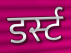
डर्स्ट